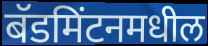
बॅडमिंटनमधील